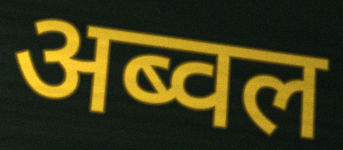
अब्वल